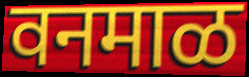
वनमाळ